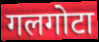
गलगोटा